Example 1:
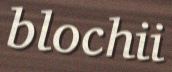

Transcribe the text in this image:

blochii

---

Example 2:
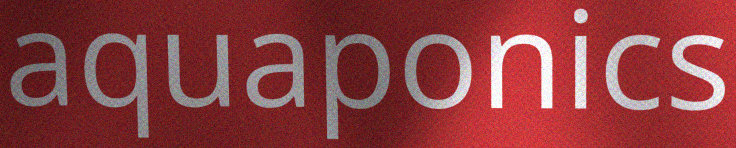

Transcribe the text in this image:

aquaponics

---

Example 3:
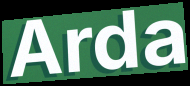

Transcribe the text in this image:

Arda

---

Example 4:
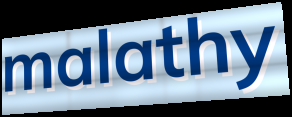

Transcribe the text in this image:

malathy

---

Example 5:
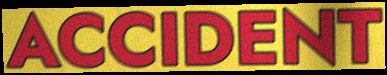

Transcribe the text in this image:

ACCIDENT